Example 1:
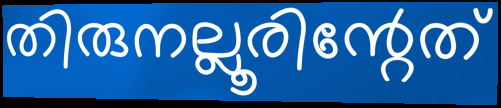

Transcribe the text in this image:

തിരുനല്ലൂരിന്റേത്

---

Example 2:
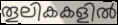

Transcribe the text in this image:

തൂലികകളിൽ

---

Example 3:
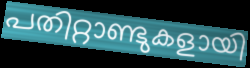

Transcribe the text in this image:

പതിറ്റാണ്ടുകളായി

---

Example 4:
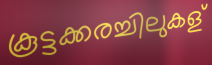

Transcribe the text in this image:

കൂട്ടക്കരച്ചിലുകള്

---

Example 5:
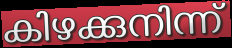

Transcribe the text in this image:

കിഴക്കുനിന്ന്